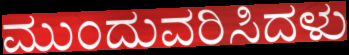
ಮುಂದುವರಿಸಿದಳು